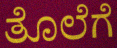
ತೊಲೆಗೆ